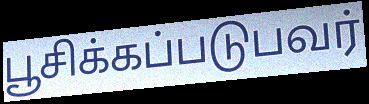
பூசிக்கப்படுபவர்